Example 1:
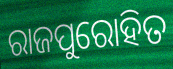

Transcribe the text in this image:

ରାଜପୁରୋହିତ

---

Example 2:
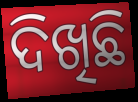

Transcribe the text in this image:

ଦିଖିଛି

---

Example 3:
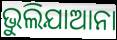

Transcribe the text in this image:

ଭୁଲିଯାଆନା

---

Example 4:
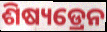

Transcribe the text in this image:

ଶିଷ୍ୟଡ୍ରେନ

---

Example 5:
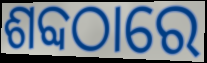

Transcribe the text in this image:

ଶବ୍ଦଠାରେ